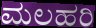
ಮಲಹರಿ